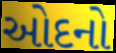
ઓદનો